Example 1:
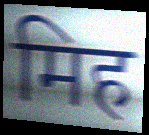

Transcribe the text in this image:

मिह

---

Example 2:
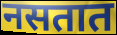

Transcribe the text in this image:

नसतात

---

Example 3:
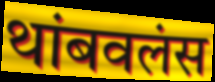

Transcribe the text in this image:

थांबवलंस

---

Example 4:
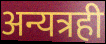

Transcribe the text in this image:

अन्यत्रही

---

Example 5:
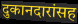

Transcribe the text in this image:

दुकानदारांसह